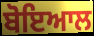
ਬੋਇਆਲ